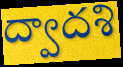
ద్వాదశి